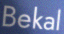
Bekal